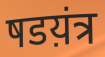
षडय़ंत्र